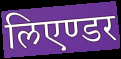
लिएण्डर